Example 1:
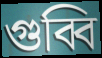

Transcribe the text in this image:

গুব্বি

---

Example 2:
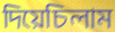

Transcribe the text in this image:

দিয়েচিলাম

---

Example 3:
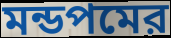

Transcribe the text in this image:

মন্ডপমের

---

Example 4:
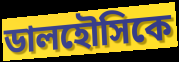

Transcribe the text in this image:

ডালহৌসিকে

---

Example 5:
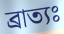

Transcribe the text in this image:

ব্রাত্যঃ